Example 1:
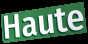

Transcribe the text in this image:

Haute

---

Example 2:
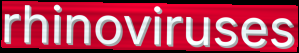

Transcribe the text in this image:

rhinoviruses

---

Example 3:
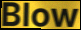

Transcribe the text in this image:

Blow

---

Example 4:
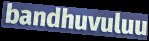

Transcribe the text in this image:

bandhuvuluu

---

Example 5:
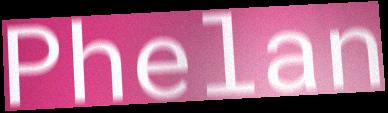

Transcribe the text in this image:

Phelan